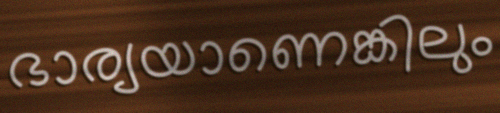
ഭാര്യയാണെങ്കിലും